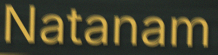
Natanam